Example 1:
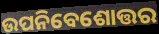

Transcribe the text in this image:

ଉପନିବେଶୋତ୍ତର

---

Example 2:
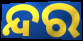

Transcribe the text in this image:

ନ୍ଦର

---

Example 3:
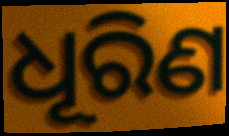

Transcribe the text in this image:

ଧୂରିଣ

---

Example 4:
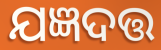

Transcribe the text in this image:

ଯଜ୍ଞଦତ୍ତ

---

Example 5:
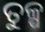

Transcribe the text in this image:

ତୁଳ୍ପ